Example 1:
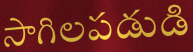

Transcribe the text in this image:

సాగిలపడుడి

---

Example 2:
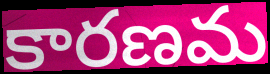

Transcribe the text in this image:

కారణమ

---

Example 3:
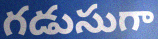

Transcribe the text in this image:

గడుసుగా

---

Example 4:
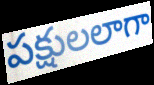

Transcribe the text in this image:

పక్షులలాగా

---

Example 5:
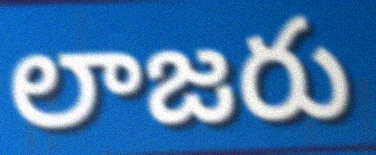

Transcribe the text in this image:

లాజరు